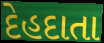
દેહદાતા